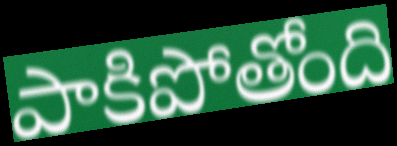
పాకిపోతోంది